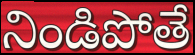
నిండిపోతే